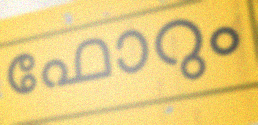
ഫോറും